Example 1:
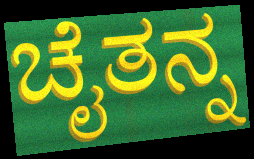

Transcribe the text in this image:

ಚೈತನ್ನ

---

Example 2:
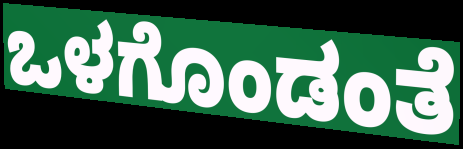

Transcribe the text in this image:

ಒಳಗೊಂಡಂತೆ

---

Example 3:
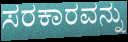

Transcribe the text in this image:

ಸರಕಾರವನ್ನು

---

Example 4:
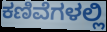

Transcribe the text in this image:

ಕಣಿವೆಗಳಲ್ಲಿ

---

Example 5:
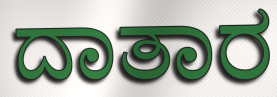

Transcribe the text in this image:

ದಾತಾರ